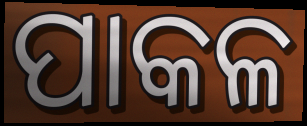
ପାକଳ